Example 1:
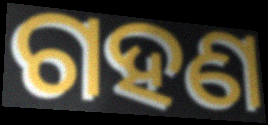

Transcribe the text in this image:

ଗହଣ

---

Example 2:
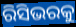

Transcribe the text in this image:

ରିସିଭରକୁ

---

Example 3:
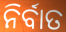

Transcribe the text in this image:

ନିର୍ବାତ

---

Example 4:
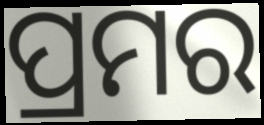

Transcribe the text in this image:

ପ୍ରମର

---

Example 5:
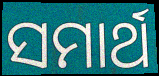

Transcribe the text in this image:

ସମାର୍ଥ